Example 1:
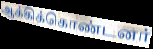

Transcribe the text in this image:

ஆக்கிக்கொண்டனர்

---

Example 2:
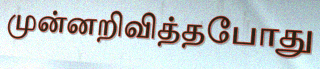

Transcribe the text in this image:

முன்னறிவித்தபோது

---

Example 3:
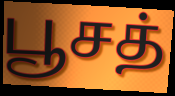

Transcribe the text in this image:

பூசத்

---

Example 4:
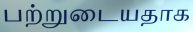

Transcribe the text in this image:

பற்றுடையதாக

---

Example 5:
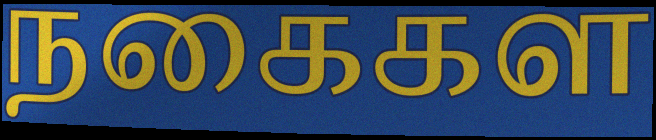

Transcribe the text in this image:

நகைகள